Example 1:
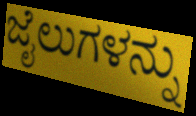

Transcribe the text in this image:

ಜೈಲುಗಳನ್ನು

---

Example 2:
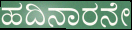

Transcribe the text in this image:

ಹದಿನಾರನೇ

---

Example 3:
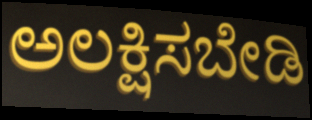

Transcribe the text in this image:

ಅಲಕ್ಷಿಸಬೇಡಿ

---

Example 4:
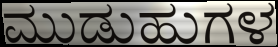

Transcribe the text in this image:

ಮುಡುಹುಗಳ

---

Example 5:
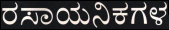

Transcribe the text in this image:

ರಸಾಯನಿಕಗಳ